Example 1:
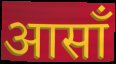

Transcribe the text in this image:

आसाँ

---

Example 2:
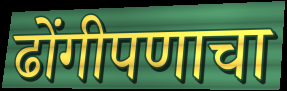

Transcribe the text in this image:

ढोंगीपणाचा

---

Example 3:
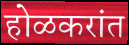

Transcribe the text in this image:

होळकरांत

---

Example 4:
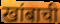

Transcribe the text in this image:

खांबाची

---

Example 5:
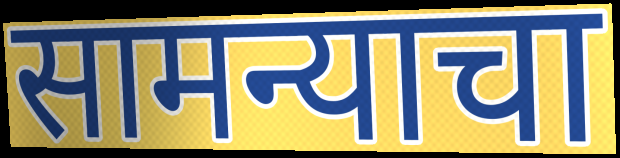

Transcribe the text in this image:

सामन्याचा